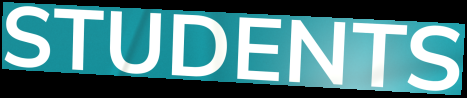
STUDENTS